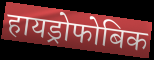
हायड्रोफोबिक